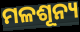
ମଳଶୂନ୍ୟ